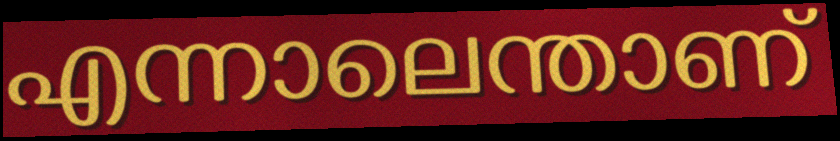
എന്നാലെന്താണ്